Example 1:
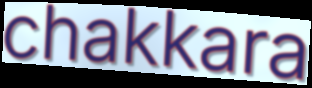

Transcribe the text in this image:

chakkara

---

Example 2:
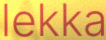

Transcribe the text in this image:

lekka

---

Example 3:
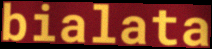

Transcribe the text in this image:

bialata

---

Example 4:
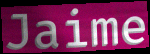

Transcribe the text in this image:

Jaime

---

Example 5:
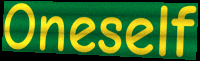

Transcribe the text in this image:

Oneself